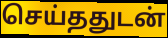
செய்ததுடன்